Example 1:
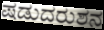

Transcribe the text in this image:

ಷಡುದರುಶನ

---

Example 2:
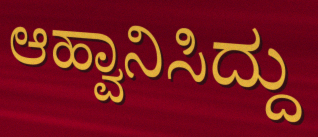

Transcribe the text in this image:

ಆಹ್ವಾನಿಸಿದ್ದು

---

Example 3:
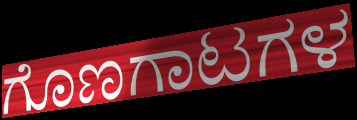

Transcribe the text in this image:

ಗೊಣಗಾಟಗಳ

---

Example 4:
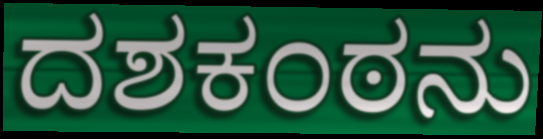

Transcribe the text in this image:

ದಶಕಂಠನು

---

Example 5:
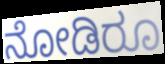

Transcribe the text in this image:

ನೋಡಿರೂ